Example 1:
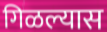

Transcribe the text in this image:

गिळल्यास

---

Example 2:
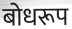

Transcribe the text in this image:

बोधरूप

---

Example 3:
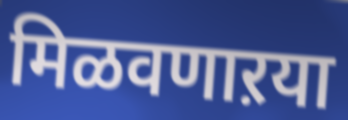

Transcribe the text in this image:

मिळवणाऱया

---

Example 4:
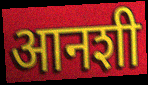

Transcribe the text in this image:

आनशी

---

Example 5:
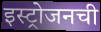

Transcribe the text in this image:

इस्ट्रोजनची